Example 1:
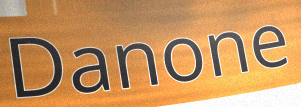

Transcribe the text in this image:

Danone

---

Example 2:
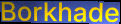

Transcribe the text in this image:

Borkhade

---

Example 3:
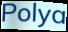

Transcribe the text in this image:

Polya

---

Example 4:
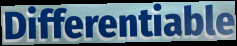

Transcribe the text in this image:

Differentiable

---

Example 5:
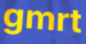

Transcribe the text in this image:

gmrt